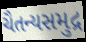
ચૈતન્યસમુદ્ર